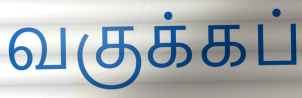
வகுக்கப்